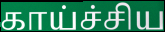
காய்ச்சிய